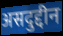
असदुद्दीन